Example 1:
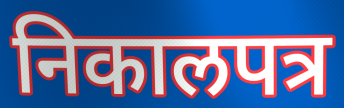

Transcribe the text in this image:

निकालपत्र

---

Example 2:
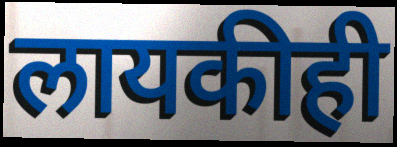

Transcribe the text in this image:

लायकीही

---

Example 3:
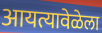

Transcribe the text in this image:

आयत्यावेळेला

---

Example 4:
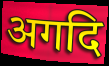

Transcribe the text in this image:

अगदि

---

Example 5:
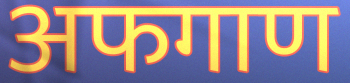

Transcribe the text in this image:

अफगाण